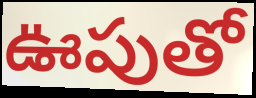
ఊపుతో